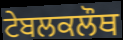
ਟੇਬਲਕਲੌਥ